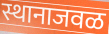
स्थानाजवळ